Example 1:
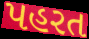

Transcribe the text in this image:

પહરત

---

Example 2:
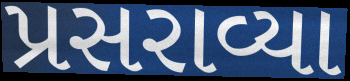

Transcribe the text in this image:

પ્રસરાવ્યા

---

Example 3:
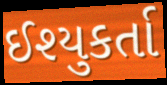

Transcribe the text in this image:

ઈશ્યુકર્તા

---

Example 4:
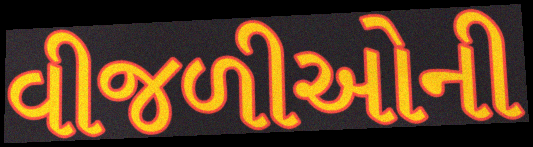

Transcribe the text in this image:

વીજળીઓની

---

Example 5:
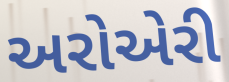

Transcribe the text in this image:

અરોએરી